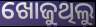
ଖୋଜୁଥିଲୁ